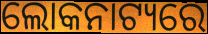
ଲୋକନାଟ୍ୟରେ